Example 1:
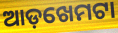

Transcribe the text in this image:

ଆଡ଼ଖେମଟା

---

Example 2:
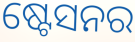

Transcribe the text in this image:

ଷ୍ଟେସନର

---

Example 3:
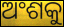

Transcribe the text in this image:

ଅଂଶକୁ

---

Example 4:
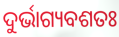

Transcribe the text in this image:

ଦୁର୍ଭାଗ୍ୟବଶତଃ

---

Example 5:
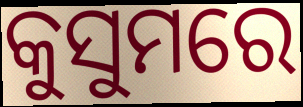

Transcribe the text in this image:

କୁସୁମରେ